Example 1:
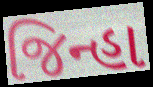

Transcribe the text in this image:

જિન્હા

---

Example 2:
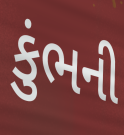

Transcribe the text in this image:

કુંભની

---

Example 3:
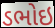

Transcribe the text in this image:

ડભોઇ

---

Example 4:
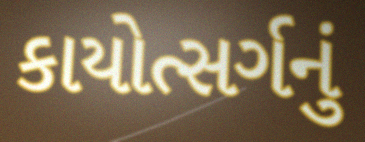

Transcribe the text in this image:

કાયોત્સર્ગનું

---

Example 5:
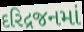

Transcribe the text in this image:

દરિદ્રજનમાં